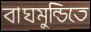
বাঘমুন্ডিতে